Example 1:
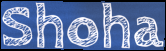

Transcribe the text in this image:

Shoha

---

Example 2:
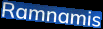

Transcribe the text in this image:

Ramnamis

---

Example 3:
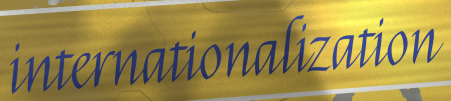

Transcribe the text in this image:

internationalization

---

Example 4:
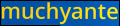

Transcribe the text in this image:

muchyante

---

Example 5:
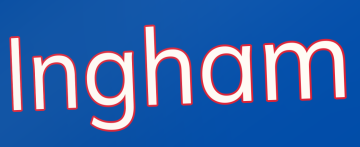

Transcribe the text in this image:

Ingham